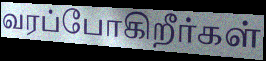
வரப்போகிறீர்கள்